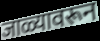
जाळ्यावरून